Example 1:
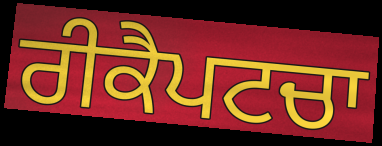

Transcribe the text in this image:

ਰੀਕੈਪਟਚਾ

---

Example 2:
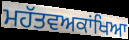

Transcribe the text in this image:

ਮਹੱਤਵਅਕਾਂਖਿਆ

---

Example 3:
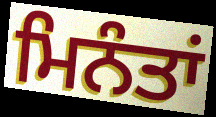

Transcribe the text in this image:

ਮਿਨੰਤਾਂ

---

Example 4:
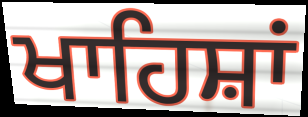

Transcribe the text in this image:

ਖਾਹਿਸ਼ਾਂ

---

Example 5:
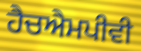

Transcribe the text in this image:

ਹੈਚਐਮਪੀਵੀ